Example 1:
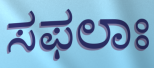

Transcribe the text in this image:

ಸಫಲಾಃ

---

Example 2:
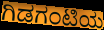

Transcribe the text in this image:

ಗಿಡಗಂಟಿಯ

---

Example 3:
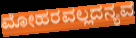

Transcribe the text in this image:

ಮೋಹರವಲ್ಲದನ್ಯವ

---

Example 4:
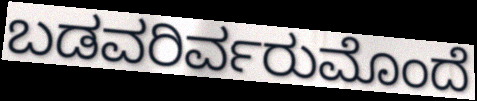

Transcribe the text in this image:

ಬಡವರಿರ್ವರುಮೊಂದೆ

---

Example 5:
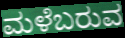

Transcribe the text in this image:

ಮಳೆಬರುವ